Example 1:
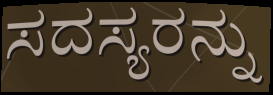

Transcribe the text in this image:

ಸದಸ್ಯರನ್ನು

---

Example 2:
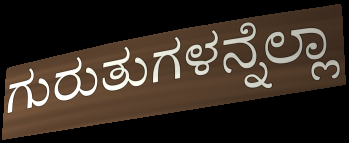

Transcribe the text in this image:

ಗುರುತುಗಳನ್ನೆಲ್ಲಾ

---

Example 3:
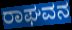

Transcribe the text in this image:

ರಾಘವನ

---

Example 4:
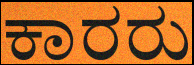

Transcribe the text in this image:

ಕಾರರು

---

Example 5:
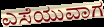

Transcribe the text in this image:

ಎಸೆಯುವಾಗ